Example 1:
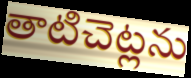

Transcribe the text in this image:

తాటిచెట్లను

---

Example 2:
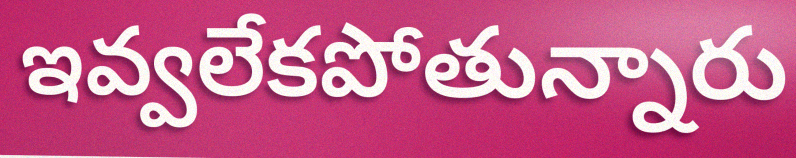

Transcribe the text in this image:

ఇవ్వలేకపోతున్నారు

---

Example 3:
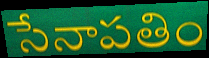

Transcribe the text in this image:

సేనాపతిం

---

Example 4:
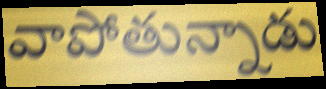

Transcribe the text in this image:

వాపోతున్నాడు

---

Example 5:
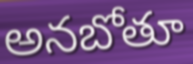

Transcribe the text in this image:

అనబోతూ